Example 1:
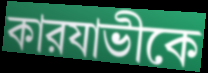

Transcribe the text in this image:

কারযাভীকে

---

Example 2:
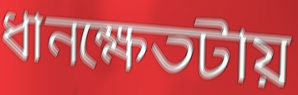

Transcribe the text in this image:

ধানক্ষেতটায়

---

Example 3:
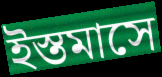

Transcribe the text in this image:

ইস্তমাসে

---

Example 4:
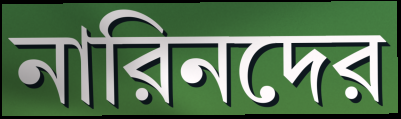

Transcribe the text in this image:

নারিনদের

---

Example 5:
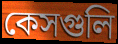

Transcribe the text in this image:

কেসগুলি